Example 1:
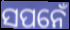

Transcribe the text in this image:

ସପନେଁ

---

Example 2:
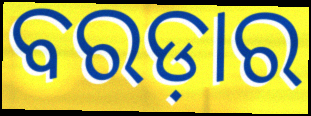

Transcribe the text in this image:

ବରଡ଼ାର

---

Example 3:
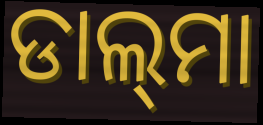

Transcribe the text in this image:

ଡାଲ୍‍ମା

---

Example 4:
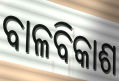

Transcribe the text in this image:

ବାଳବିକାଶ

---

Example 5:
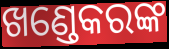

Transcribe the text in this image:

ଖଣ୍ଡେକରଙ୍କ